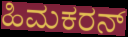
ಹಿಮಕರನ್